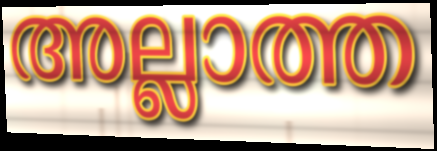
അല്ലാത്ത